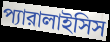
প্যারালাইসিস